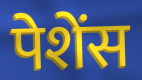
पेशेंस